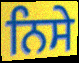
ਨਿਸੇ